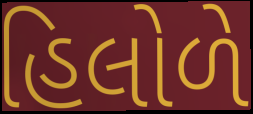
હિલોળે